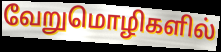
வேறுமொழிகளில்